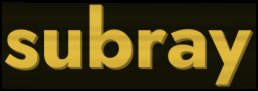
subray